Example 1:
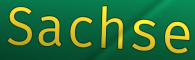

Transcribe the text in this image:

Sachse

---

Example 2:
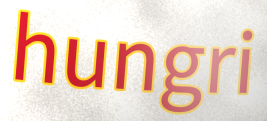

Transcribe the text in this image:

hungri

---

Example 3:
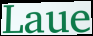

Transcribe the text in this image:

Laue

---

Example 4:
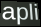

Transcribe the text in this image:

apli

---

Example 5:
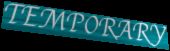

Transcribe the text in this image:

TEMPORARY